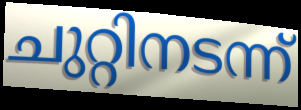
ചുറ്റിനടന്ന്